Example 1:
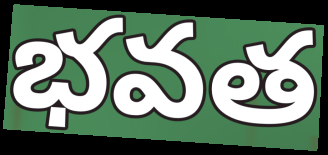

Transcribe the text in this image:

భవత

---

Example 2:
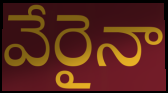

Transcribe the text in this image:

వేరైనా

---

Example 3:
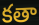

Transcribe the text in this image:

కతా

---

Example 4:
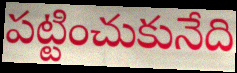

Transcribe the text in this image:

పట్టించుకునేది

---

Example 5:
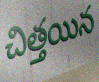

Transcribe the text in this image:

చిత్తయిన